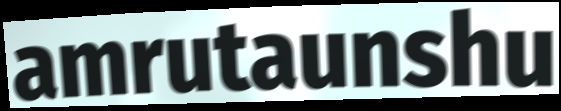
amrutaunshu